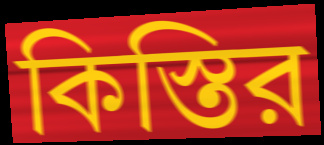
কিস্তির